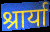
श्रार्या